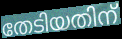
തേടിയതിന്